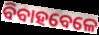
ବିବାହବେଳେ